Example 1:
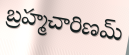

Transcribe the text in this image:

బ్రహ్మచారిణమ్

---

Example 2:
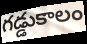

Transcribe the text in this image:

గడ్డుకాలం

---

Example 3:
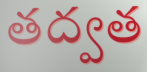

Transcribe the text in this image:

తద్వత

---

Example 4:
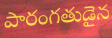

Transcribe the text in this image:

పారంగతుడైన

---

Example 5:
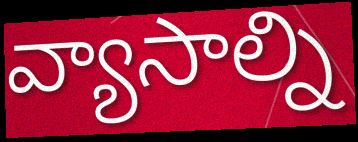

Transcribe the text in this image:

వ్యాసాల్ని